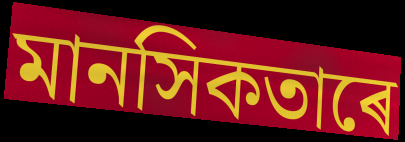
মানসিকতাৰে